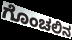
ಗೊಂಚಲಿನ